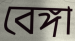
বেঙ্গা